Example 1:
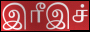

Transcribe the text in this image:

இரீஇச்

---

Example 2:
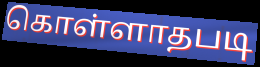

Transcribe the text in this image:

கொள்ளாதபடி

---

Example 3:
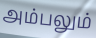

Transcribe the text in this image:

அம்பலும்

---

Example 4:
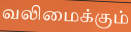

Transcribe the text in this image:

வலிமைக்கும்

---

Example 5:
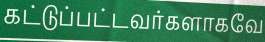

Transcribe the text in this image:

கட்டுப்பட்டவர்களாகவே